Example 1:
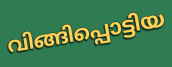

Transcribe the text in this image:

വിങ്ങിപ്പൊട്ടിയ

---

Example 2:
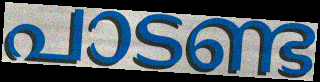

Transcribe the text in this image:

പാടണ്ട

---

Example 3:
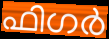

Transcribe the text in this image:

ഫിഗർ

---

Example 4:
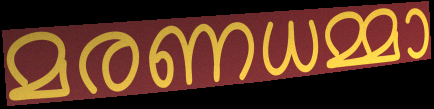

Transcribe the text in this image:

മരണധമ്മാ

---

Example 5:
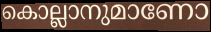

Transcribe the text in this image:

കൊല്ലാനുമാണോ